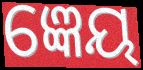
ଜ୍ଞେୟ